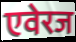
एवेरज